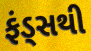
ફંડ્સથી